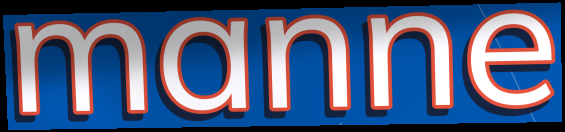
manne